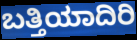
ಬತ್ತಿಯಾದಿರಿ